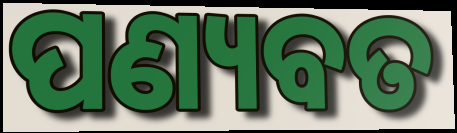
ପଣ୍ୟବତ